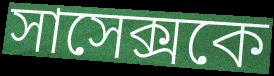
সাসেক্সকে